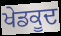
ਖੇਡਕੂਦ